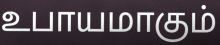
உபாயமாகும்